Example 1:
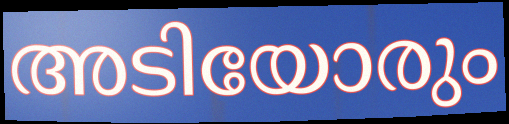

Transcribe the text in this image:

അടിയോരും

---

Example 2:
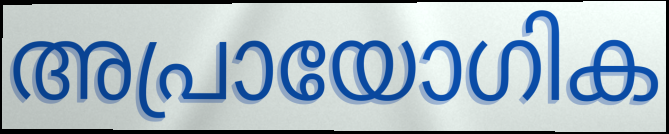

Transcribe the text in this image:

അപ്രായോഗിക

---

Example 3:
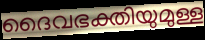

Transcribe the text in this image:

ദൈവഭക്തിയുമുള്ള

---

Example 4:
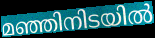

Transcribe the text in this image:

മഞ്ഞിനിടയിൽ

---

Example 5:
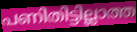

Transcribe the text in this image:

പണിതിട്ടില്ലാത്ത